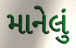
માનેલું